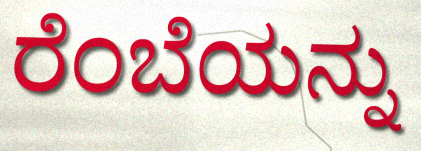
ರೆಂಬೆಯನ್ನು